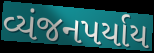
વ્યંજનપર્યાય